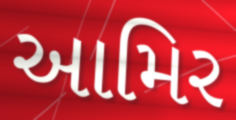
આમિર